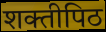
शक्तीपिठ